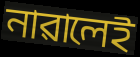
নাৱালেই